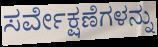
ಸರ್ವೇಕ್ಷಣೆಗಳನ್ನು